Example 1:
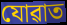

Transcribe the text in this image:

যোৱাত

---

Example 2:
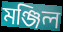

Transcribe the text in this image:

মঞ্জিল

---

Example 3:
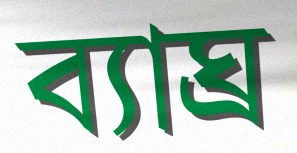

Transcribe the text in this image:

ব্যাঘ্ৰ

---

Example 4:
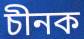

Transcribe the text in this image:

চীনক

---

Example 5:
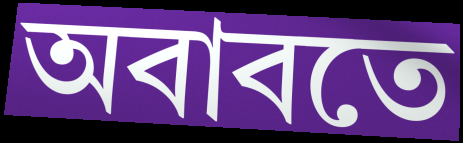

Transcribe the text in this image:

অবাবতে